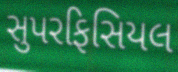
સુપરફિસિયલ